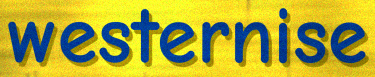
westernise